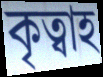
কৃত্বাহ